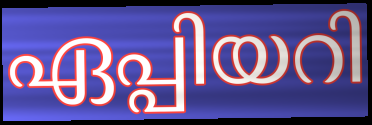
ഏപ്പിയറി